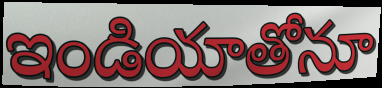
ఇండియాతోనూ